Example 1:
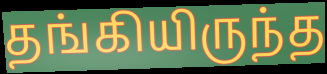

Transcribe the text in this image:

தங்கியிருந்த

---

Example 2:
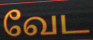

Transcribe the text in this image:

வேட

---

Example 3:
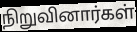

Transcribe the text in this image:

நிறுவினார்கள்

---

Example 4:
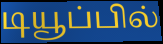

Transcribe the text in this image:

டியூப்பில்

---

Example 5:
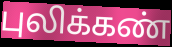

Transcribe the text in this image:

புலிக்கண்